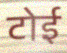
टोई